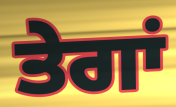
ਤੇਗਾਂ